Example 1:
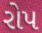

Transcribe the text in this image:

રોપ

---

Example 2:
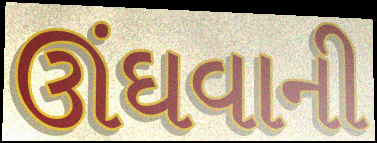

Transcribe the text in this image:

ઊંઘવાની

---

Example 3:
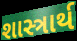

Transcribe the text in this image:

શાસ્ત્રાર્થ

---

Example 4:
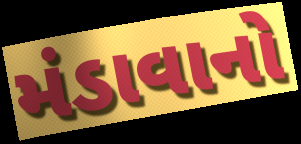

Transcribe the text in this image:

મંડાવાનો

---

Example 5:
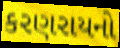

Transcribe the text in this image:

કરણરાયનો